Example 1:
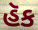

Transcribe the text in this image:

હૅક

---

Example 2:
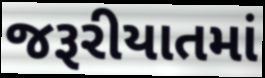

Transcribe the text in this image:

જરૂરીયાતમાં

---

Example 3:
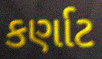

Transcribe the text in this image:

કર્ણાટ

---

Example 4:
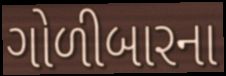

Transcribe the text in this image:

ગોળીબારના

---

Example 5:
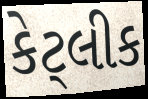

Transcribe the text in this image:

કેટ્લીક